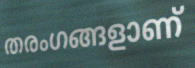
തരംഗങ്ങളാണ്